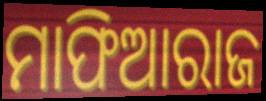
ମାଫିଆରାଜ